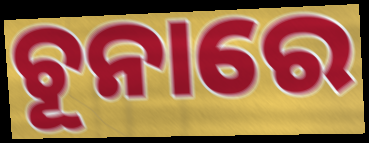
ଚୂନାରେ